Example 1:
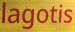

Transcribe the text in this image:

lagotis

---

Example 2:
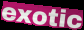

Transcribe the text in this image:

exotic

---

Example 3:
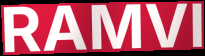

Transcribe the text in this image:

RAMVI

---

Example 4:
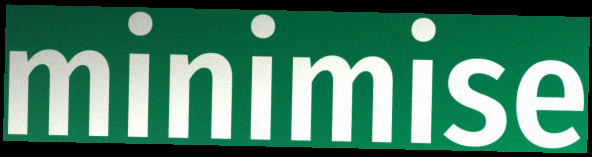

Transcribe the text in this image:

minimise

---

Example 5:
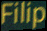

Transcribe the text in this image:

Filip